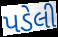
પડેલી